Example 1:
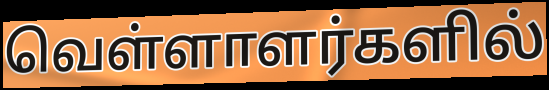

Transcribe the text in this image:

வெள்ளாளர்களில்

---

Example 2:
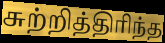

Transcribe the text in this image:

சுற்றித்திரிந்த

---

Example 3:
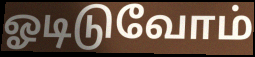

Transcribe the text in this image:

ஓடிடுவோம்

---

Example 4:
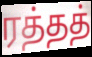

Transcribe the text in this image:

ரத்தத்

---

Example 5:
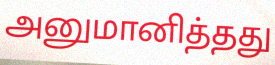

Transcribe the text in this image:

அனுமானித்தது